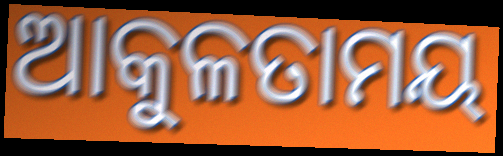
ଆକୁଳତାମୟ